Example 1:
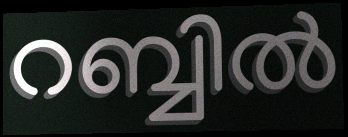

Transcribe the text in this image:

റബ്ബിൽ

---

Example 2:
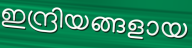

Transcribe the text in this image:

ഇന്ദ്രിയങ്ങളായ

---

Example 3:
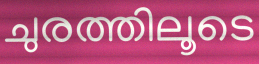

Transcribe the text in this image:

ചുരത്തിലൂടെ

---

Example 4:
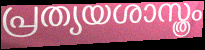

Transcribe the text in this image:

പ്രത്യയശാസ്ത്രം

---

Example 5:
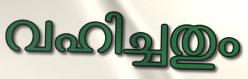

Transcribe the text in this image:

വഹിച്ചതും